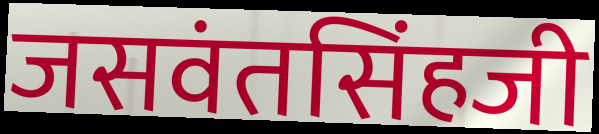
जसवंतसिंहजी